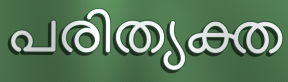
പരിത്യക്ത